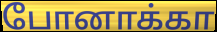
போனாக்கா